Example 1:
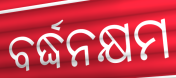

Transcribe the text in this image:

ବର୍ଦ୍ଧନକ୍ଷମ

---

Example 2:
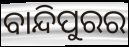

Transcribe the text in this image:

ବାନ୍ଦିପୁରର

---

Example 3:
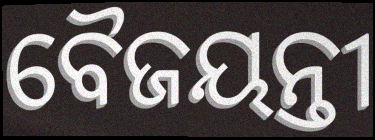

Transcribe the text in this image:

ବୈଜୟନ୍ତୀ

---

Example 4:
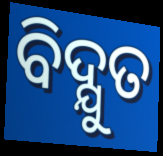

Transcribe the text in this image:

ବିଦ୍ଯୁତ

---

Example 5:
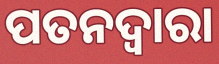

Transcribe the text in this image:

ପତନଦ୍ୱାରା